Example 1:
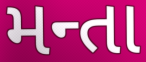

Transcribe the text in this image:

મન્તા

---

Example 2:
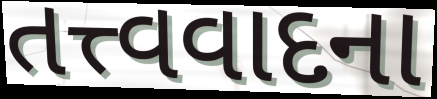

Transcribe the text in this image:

તત્ત્વવાદના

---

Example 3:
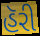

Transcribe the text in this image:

હૅરી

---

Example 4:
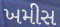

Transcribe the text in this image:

ખમીસ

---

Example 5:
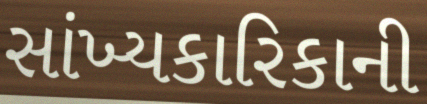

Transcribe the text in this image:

સાંખ્યકારિકાની